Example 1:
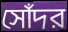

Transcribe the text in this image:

সোঁদর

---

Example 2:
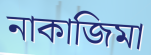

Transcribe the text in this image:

নাকাজিমা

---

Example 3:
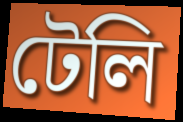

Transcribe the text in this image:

টেলি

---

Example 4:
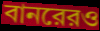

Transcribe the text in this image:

বানরেরও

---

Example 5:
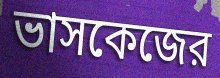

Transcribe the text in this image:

ভাসকেজের